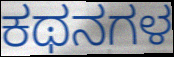
ಕಥನಗಳ